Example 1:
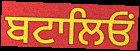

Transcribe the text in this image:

ਬਟਾਲਿਓਂ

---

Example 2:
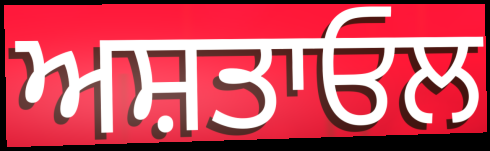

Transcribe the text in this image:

ਅਸ਼ਤਾਓਲ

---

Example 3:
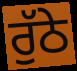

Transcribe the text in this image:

ਰੁੱਠੇ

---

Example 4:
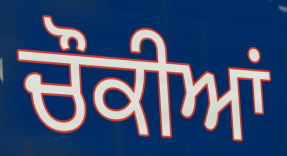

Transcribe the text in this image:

ਚੌਕੀਆਂ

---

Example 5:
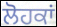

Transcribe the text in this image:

ਲੋਹਕਾਂ